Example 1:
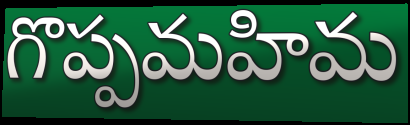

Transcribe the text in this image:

గొప్పమహిమ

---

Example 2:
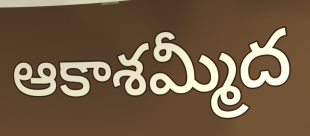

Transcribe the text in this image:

ఆకాశమ్మీద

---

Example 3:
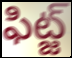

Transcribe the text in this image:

ఫిట్జ్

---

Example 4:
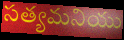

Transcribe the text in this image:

సత్యమనియు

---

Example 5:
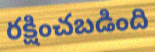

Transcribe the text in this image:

రక్షించబడింది